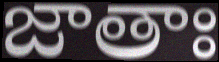
జాతాః